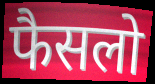
फैसलो